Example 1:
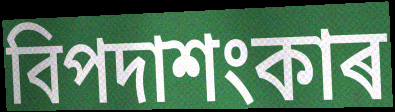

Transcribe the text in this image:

বিপদাশংকাৰ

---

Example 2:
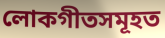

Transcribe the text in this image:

লোকগীতসমূহত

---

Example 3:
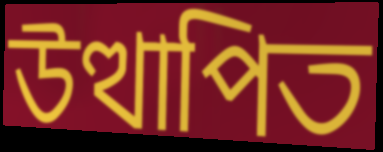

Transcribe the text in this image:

উত্থাপিত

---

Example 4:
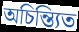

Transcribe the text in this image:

অচিন্ত্যিত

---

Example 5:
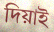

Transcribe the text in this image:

দিয়াই